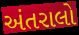
અંતરાલો